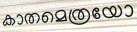
കാതമെത്രയോ